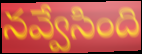
నవ్వేసింది